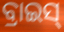
ବ୍ରାଇସ୍